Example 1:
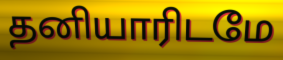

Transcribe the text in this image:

தனியாரிடமே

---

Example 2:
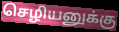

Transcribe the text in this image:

செழியனுக்கு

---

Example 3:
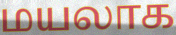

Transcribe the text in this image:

மயலாக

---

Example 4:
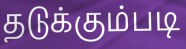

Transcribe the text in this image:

தடுக்கும்படி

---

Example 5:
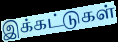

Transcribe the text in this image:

இக்கட்டுகள்